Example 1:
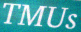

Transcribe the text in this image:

TMUs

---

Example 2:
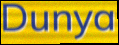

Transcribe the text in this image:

Dunya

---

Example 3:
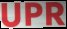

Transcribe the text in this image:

UPR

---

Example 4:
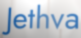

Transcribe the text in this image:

Jethva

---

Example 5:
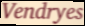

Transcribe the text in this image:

Vendryes